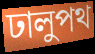
ঢালুপথ